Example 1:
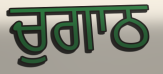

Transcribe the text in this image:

ਚੁਗਾਠ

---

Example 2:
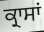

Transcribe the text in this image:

ਕ੍ਰਾਸਾਂ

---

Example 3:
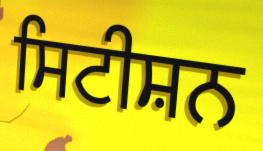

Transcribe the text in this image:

ਸਿਟੀਸ਼ਨ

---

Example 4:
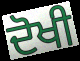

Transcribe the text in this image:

ਦੋਖੀ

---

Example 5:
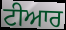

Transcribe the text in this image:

ਟੀਆਰ